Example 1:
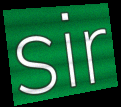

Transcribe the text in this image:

sir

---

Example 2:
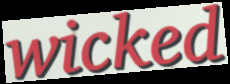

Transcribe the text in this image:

wicked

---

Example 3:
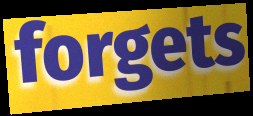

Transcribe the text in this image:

forgets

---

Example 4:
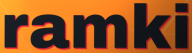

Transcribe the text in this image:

ramki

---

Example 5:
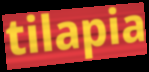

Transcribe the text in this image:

tilapia